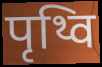
पृथ्वि